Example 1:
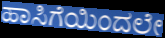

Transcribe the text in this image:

ಹಾಸಿಗೆಯಿಂದಲೇ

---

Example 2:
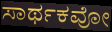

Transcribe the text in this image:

ಸಾರ್ಥಕವೋ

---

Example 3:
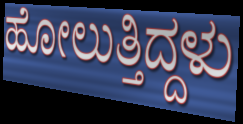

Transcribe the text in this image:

ಹೋಲುತ್ತಿದ್ದಳು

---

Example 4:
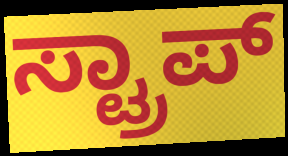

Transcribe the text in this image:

ಸ್ಟ್ರಾಪ್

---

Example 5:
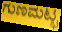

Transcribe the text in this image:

ಗುಣಮಟ್ಟ